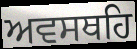
ਅਵਸਥਹਿ